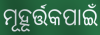
ମୂହୂର୍ତ୍ତକପାଇଁ